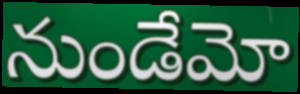
నుండేమో